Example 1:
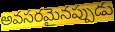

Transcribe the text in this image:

అవసరమైనప్పుడు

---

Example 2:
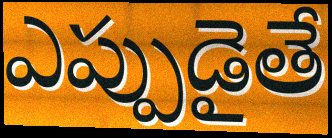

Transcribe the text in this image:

ఎప్పుడైతే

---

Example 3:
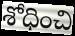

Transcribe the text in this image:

శోధించి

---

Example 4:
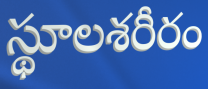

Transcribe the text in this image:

స్థూలశరీరం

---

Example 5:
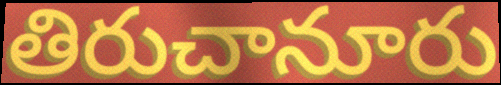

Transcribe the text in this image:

తిరుచానూరు